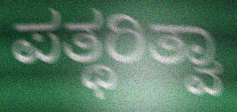
ಪತ್ಥರಿತ್ವಾ